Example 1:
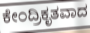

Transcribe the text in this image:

ಕೇಂದ್ರಿಕೃತವಾದ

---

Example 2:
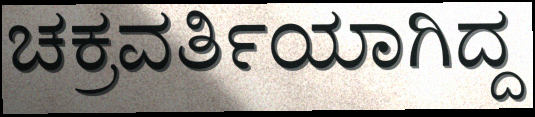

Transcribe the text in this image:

ಚಕ್ರವರ್ತಿಯಾಗಿದ್ದ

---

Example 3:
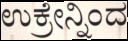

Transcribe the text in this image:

ಉಕ್ರೇನ್ನಿಂದ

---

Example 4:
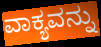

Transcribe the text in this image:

ವಾಕ್ಯವನ್ನು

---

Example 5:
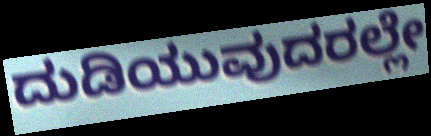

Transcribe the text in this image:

ದುಡಿಯುವುದರಲ್ಲೇ